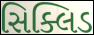
સિક્લિડ